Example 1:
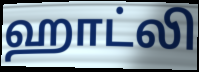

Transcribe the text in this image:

ஹாட்லி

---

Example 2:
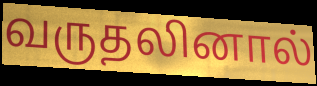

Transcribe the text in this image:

வருதலினால்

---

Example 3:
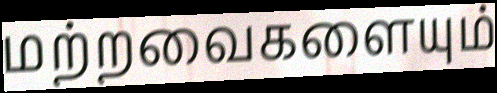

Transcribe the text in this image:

மற்றவைகளையும்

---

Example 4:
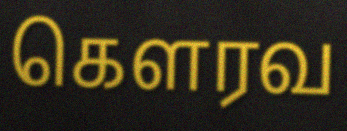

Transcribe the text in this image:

கெளரவ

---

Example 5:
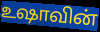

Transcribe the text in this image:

உஷாவின்